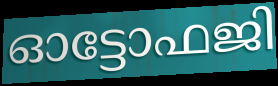
ഓട്ടോഫജി